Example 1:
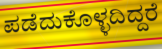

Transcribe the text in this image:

ಪಡೆದುಕೊಳ್ಳದಿದ್ದರೆ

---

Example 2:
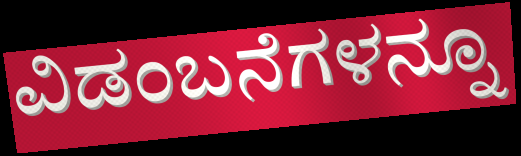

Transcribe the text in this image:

ವಿಡಂಬನೆಗಳನ್ನೂ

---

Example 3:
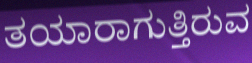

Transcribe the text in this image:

ತಯಾರಾಗುತ್ತಿರುವ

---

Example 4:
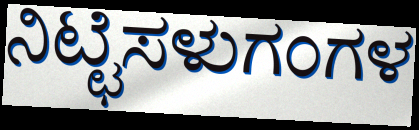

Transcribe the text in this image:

ನಿಟ್ಟೆಸಳುಗಂಗಳ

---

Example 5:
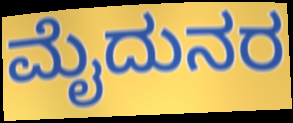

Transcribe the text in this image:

ಮೈದುನರ